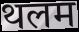
थलम